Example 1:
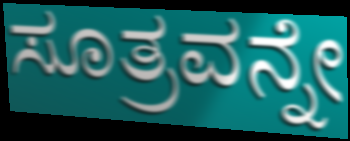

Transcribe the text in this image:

ಸೂತ್ರವನ್ನೇ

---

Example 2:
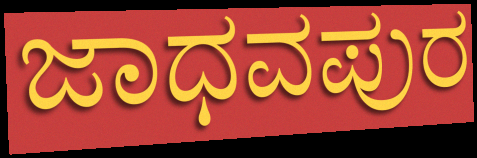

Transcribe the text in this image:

ಜಾಧವಪುರ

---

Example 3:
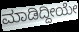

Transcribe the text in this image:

ಮಾಡಿದ್ದೀಯೇ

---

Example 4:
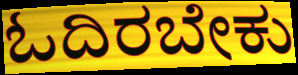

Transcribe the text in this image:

ಓದಿರಬೇಕು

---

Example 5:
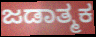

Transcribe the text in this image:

ಜಡಾತ್ಮಕ